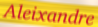
Aleixandre